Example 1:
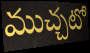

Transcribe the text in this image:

ముచ్చటో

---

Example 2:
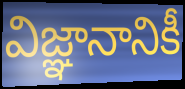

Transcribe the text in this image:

విజ్ఞానానికీ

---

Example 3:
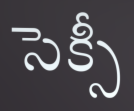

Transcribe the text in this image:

సెక్సీ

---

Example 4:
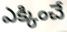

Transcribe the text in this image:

ఎక్కించే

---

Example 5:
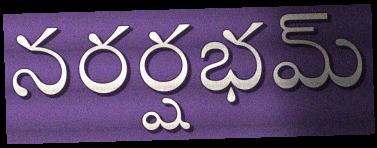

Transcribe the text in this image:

నరర్షభమ్